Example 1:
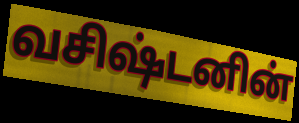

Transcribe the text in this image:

வசிஷ்டனின்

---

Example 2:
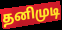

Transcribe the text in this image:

தனிமுடி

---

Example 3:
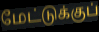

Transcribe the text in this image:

மேட்டுக்குப்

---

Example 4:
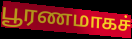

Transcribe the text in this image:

பூரணமாகச்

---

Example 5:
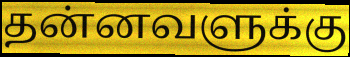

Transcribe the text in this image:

தன்னவளுக்கு